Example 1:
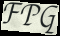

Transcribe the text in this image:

FPG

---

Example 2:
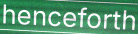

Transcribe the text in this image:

henceforth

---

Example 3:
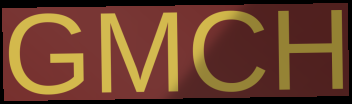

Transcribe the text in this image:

GMCH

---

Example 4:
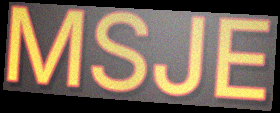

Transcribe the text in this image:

MSJE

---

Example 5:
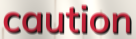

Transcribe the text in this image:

caution